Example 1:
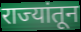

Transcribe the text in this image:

राज्यांतून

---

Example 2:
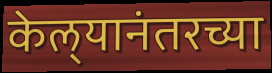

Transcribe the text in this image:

केल्यानंतरच्या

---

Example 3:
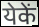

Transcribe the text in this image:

येकें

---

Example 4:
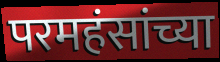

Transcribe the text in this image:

परमहंसांच्या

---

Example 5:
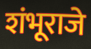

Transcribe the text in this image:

शंभूराजे